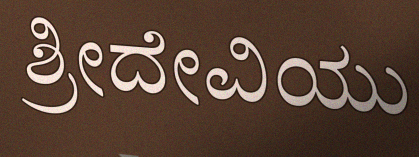
ಶ್ರೀದೇವಿಯು